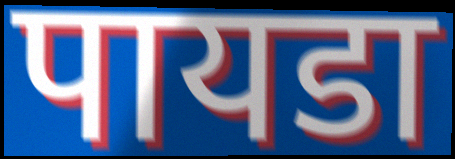
पायडा